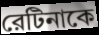
রেটিনাকে